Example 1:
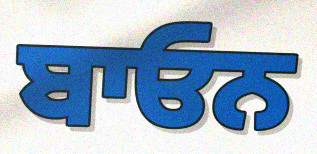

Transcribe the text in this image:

ਬਾਓਨ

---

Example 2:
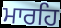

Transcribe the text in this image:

ਮਾਰਹਿ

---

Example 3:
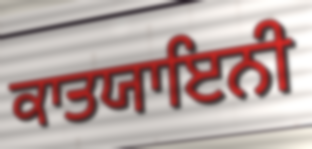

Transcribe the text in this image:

ਕਾਤਯਾਇਨੀ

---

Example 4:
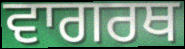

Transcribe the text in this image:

ਵਾਗਰਥ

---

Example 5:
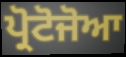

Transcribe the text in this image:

ਪ੍ਰੋਟੋਜੋਆ